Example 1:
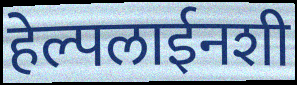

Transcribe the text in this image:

हेल्पलाईनशी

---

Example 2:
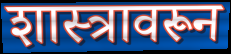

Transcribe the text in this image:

शास्त्रावरून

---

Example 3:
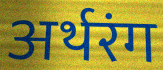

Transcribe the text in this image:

अर्थरंग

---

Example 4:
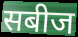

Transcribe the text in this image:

सबीज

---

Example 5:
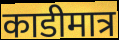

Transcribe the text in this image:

काडीमात्र